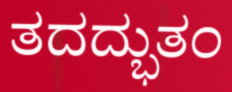
ತದದ್ಭುತಂ